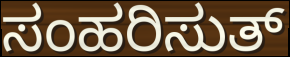
ಸಂಹರಿಸುತ್